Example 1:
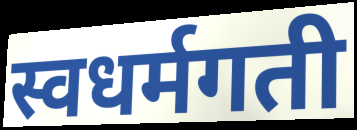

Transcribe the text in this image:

स्वधर्मगती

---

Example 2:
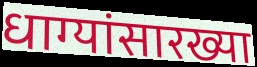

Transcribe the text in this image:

धाग्यांसारख्या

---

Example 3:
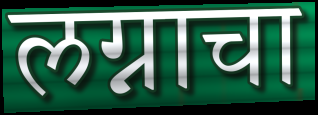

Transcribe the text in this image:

लग्नाचा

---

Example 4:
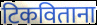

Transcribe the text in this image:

टिकविताना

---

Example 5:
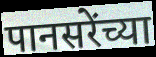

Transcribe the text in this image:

पानसरेंच्या